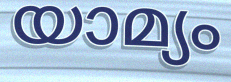
യാമ്യം